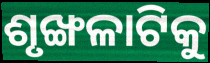
ଶୃଙ୍ଖଳାଟିକୁ